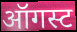
ऑगस्ट